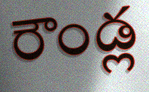
రౌండ్ల